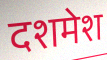
दशमेश